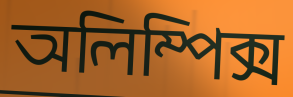
অলিম্পিক্স